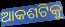
ଆକଶଟିକୁ